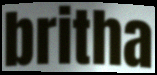
britha